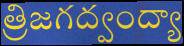
త్రిజగద్వంద్యా